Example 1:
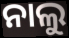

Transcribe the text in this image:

ନାଲୁ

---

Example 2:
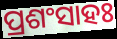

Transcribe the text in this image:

ପ୍ରଶଂସାହଃ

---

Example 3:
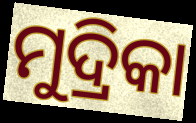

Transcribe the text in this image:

ମୁଦ୍ରିକା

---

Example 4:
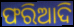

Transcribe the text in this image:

ଫରିଆଦି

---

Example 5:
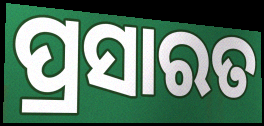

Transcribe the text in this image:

ପ୍ରସାରତ